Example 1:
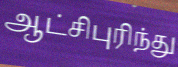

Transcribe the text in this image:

ஆட்சிபுரிந்து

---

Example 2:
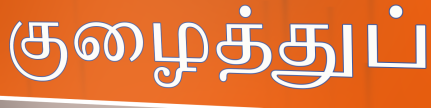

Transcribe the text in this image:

குழைத்துப்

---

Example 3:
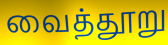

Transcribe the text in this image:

வைத்தூறு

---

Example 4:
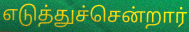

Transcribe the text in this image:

எடுத்துச்சென்றார்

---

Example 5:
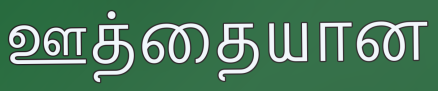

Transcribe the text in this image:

ஊத்தையான